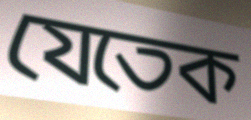
যেতেক